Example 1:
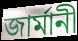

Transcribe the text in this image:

জাৰ্মানী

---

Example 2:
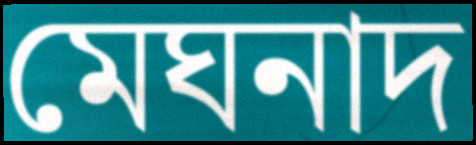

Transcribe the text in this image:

মেঘনাদ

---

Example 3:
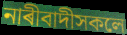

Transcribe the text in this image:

নাৰীবাদীসকলে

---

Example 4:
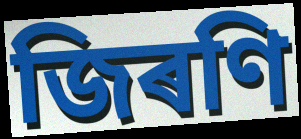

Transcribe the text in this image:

জিৰণি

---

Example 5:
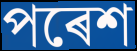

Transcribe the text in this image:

পৰেশ